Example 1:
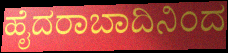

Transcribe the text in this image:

ಹೈದರಾಬಾದಿನಿಂದ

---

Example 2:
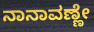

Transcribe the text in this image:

ನಾನಾವಣ್ಣೇ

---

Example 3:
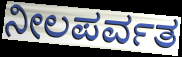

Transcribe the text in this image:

ನೀಲಪರ್ವತ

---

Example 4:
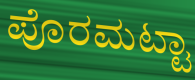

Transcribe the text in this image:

ಪೊರಮಟ್ಟಾ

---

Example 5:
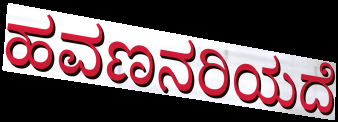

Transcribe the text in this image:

ಹವಣನರಿಯದೆ